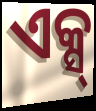
ଏକ୍ସ୍